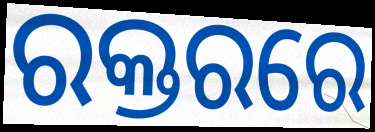
ରକ୍ତରରେ